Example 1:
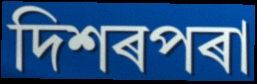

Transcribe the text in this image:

দিশৰপৰা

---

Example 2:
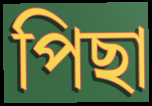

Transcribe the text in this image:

পিছা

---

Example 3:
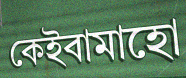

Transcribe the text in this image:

কেইবামাহো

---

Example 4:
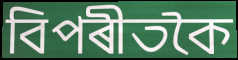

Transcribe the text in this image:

বিপৰীতকৈ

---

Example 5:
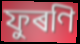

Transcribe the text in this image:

ফুৰণি